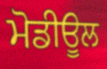
ਮੋਡੀਊਲ